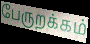
பேருறக்கம்